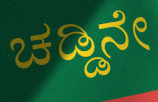
ಚಡ್ಡಿನೇ